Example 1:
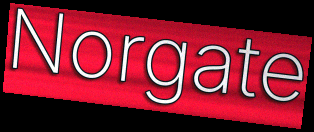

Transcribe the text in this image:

Norgate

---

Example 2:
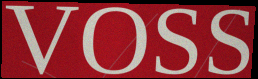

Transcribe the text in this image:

VOSS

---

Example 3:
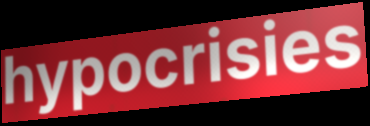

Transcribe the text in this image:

hypocrisies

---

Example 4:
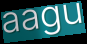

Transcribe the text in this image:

aagu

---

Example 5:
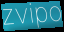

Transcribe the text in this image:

zvipo